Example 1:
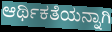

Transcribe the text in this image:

ಆರ್ಥಿಕತೆಯನ್ನಾಗಿ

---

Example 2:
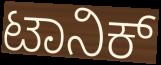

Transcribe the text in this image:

ಟಾನಿಕ್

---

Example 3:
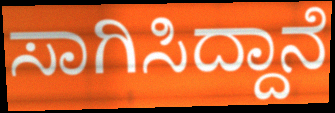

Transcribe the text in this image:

ಸಾಗಿಸಿದ್ದಾನೆ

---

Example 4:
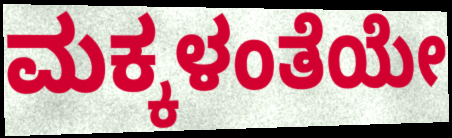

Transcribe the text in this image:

ಮಕ್ಕಳಂತೆಯೇ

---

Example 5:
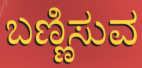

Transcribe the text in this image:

ಬಣ್ಣಿಸುವ